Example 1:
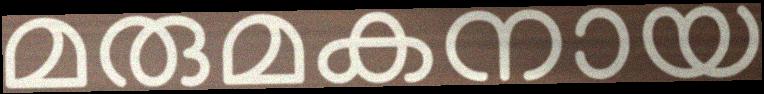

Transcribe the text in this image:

മരുമകനായ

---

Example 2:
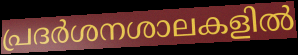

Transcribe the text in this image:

പ്രദർശനശാലകളിൽ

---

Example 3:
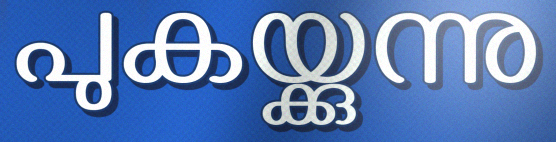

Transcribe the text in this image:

പുകയ്ക്കുന്നു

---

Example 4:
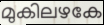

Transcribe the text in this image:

മുകിലഴകേ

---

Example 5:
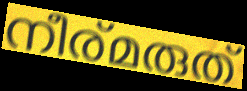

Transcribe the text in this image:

നീര്മരുത്